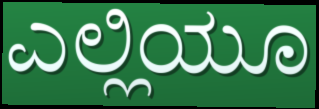
ಎಲ್ಲಿಯೂ